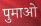
पुमाओ